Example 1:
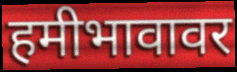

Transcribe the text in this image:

हमीभावावर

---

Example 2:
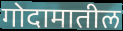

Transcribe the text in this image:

गोदामातील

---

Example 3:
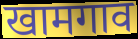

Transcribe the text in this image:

खामगाव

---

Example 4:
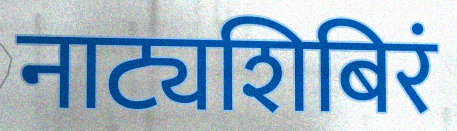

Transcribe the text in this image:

नाट्यशिबिरं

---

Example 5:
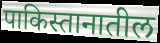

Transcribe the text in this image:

पाकिस्तानातील